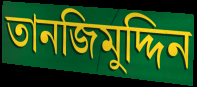
তানজিমুদ্দিন